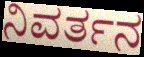
ನಿವರ್ತನ